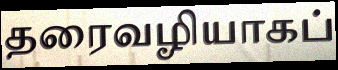
தரைவழியாகப்